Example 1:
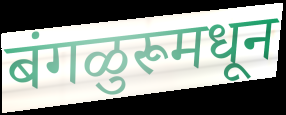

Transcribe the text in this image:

बंगळुरूमधून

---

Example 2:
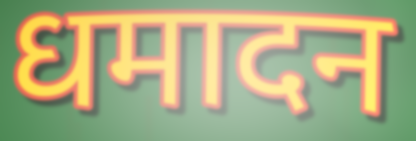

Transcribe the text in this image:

धमादन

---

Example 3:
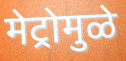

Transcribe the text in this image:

मेट्रोमुळे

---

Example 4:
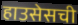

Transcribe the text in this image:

हाउसेसची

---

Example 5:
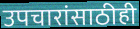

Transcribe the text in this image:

उपचारांसाठीही